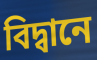
বিদ্বানে